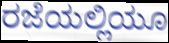
ರಜೆಯಲ್ಲಿಯೂ